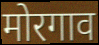
मोरगाव